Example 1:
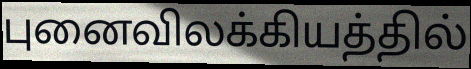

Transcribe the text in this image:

புனைவிலக்கியத்தில்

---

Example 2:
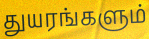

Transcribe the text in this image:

துயரங்களும்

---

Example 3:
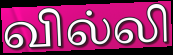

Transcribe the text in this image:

வில்லி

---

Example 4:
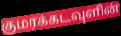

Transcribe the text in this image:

குமரக்கடவுளின்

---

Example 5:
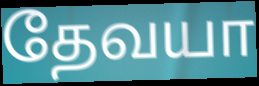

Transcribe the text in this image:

தேவயா